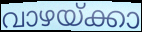
വാഴയ്ക്കാ